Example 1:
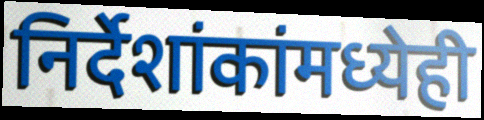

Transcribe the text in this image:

निर्देशांकांमध्येही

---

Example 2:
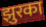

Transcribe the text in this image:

झुरका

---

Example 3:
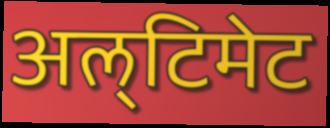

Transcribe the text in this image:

अल्टिमेट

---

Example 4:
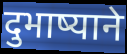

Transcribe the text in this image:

दुभाष्याने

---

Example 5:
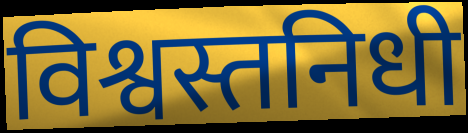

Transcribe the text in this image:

विश्वस्तनिधी